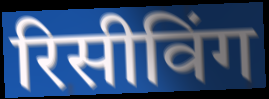
रिसीविंग